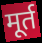
मूर्त